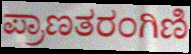
ಪ್ರಾಣತರಂಗಿಣಿ